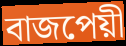
বাজপেয়ী